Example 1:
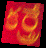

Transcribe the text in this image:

కర్త్రే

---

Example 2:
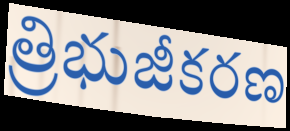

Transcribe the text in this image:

త్రిభుజీకరణ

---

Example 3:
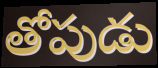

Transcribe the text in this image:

తోపుడు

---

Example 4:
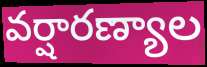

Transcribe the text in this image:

వర్షారణ్యాల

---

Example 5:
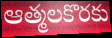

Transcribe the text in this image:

ఆత్మలకొరకు